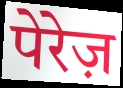
पेरेज़